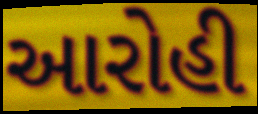
આરોહી